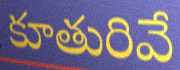
కూతురివే